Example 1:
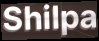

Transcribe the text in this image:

Shilpa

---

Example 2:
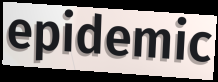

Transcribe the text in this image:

epidemic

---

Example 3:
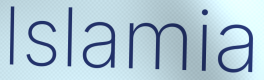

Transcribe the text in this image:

Islamia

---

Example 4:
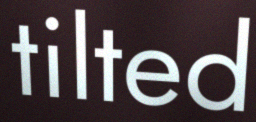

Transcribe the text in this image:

tilted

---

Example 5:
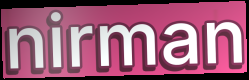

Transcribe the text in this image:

nirman